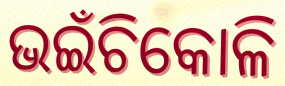
ଭଇଁଚିକୋଳି